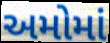
અમોમાં